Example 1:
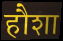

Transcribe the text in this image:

हौशा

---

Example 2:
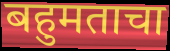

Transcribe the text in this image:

बहुमताचा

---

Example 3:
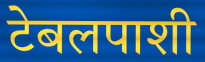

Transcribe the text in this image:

टेबलपाशी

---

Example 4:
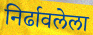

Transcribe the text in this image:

निर्ढावलेला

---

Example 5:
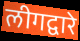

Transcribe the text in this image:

लीगद्वारे